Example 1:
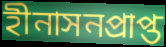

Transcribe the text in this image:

হীনাসনপ্রাপ্ত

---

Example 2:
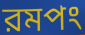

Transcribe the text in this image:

রমপং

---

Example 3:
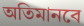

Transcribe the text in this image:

অতিমানবে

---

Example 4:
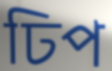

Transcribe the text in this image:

ঢিপ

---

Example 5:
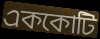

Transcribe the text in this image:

এককোটি